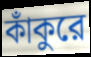
কাঁকুরে